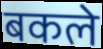
बकले